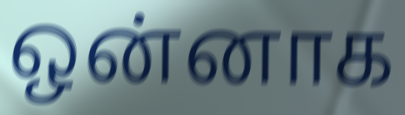
ஒன்னாக